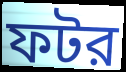
ফটর